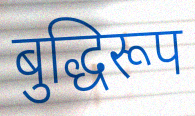
बुद्धिरूप